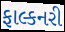
ફાલ્કનરી